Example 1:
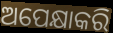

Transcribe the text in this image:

ଅପେକ୍ଷାକରି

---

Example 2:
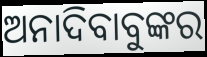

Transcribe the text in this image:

ଅନାଦିବାବୁଙ୍କର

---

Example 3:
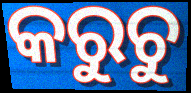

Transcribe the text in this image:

କରୁଚୁ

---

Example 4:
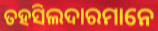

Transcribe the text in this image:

ତହସିଲଦାରମାନେ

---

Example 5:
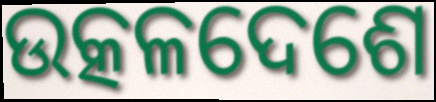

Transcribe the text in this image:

ଉତ୍କଳଦେଶେ